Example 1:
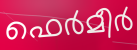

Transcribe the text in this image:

ഫെർമീർ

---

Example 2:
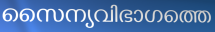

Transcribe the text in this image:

സൈന്യവിഭാഗത്തെ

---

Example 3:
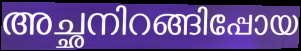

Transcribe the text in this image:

അച്ഛനിറങ്ങിപ്പോയ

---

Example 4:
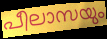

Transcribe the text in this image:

പീലാസയും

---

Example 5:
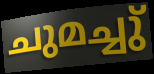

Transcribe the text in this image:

ചുമച്ചു്